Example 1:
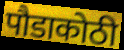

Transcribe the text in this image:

पौडाकोठी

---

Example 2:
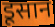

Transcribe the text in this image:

डूसान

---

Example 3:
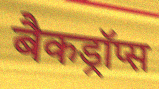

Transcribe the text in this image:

बैकड्रॉप्स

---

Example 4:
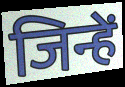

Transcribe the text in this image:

जिन्‍हें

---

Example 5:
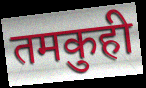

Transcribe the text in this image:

तमकुही